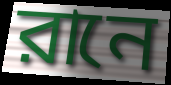
রানে